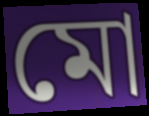
মো